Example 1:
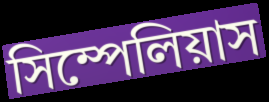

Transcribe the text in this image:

সিম্পেলিয়াস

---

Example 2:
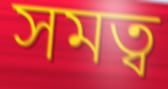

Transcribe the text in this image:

সমত্ব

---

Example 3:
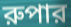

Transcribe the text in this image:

রুপার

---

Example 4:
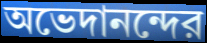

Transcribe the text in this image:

অভেদানন্দের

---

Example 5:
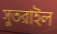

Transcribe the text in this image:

সুতরাইল